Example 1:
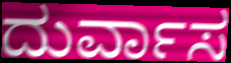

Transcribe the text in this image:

ದುರ್ವಾಸ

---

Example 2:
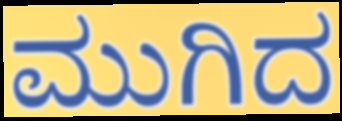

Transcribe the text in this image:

ಮುಗಿದ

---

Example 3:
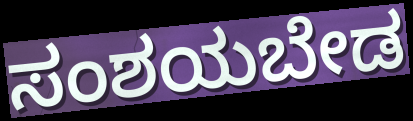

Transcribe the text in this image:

ಸಂಶಯಬೇಡ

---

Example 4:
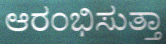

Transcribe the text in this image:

ಆರಂಭಿಸುತ್ತಾ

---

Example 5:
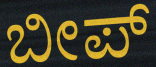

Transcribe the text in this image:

ಬೀಪ್